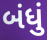
બંધું